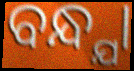
ବନ୍ଧ୍ଯା